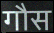
गौस